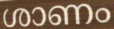
ശാണം